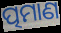
ତ୍ପମାଣ